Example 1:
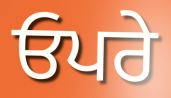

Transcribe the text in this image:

ਓਪਰੇ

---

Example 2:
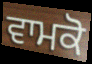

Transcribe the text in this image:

ਵਾਮਕੋ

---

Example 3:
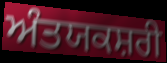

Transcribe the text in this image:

ਅੰਤਯਕਸ਼ਰੀ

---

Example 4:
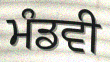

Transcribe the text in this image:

ਮੰਡਵੀ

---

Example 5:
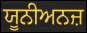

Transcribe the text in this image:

ਯੂਨੀਅਨਜ਼